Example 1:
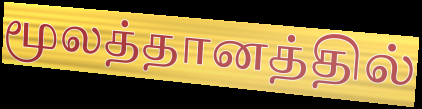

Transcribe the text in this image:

மூலத்தானத்தில்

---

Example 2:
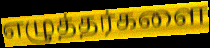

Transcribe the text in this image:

எழுத்தர்களை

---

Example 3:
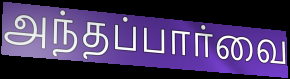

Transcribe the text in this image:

அந்தப்பார்வை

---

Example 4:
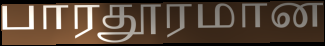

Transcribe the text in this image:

பாரதூரமான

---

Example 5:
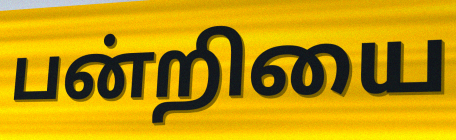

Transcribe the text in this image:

பன்றியை